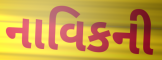
નાવિકની